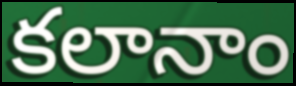
కలానాం